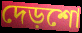
দেড়শো